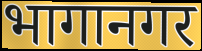
भागानगर